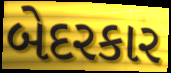
બેદરકાર